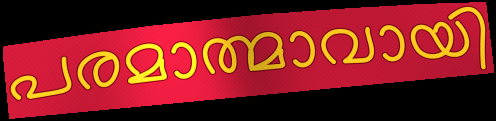
പരമാത്മാവായി